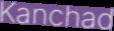
Kanchad